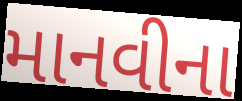
માનવીના